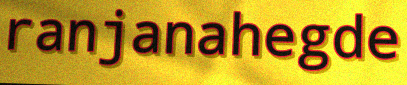
ranjanahegde